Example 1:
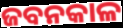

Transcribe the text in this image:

ଜବନକାଳ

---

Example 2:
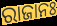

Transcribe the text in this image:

ରାଜାନଃ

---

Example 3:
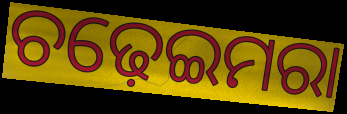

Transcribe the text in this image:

ଚଢ଼େଇମରା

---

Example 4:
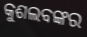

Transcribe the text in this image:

କୁଶଲବଙ୍କର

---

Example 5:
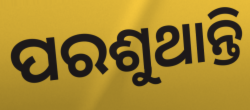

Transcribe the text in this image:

ପରଶୁଥାନ୍ତି